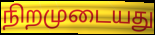
நிறமுடையது